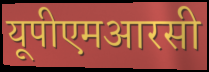
यूपीएमआरसी